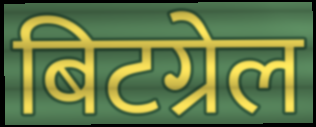
बिटग्रेल